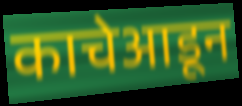
काचेआडून